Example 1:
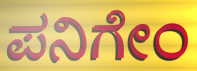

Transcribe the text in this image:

ಪನಿಗೇಂ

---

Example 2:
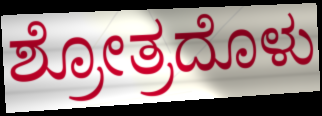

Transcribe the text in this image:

ಶ್ರೋತ್ರದೊಳು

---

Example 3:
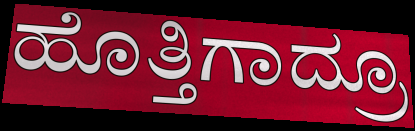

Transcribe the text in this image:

ಹೊತ್ತಿಗಾದ್ರೂ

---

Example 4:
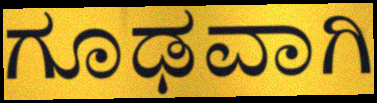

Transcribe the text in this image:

ಗೂಢವಾಗಿ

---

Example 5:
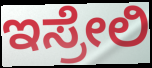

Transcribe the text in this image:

ಇಸ್ರೇಲಿ